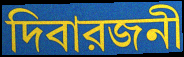
দিবারজনী